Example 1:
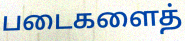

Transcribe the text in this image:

படைகளைத்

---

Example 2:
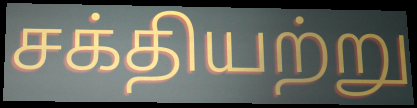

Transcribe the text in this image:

சக்தியற்று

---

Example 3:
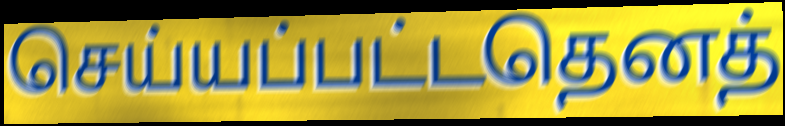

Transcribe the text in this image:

செய்யப்பட்டதெனத்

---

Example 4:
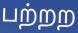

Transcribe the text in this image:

பற்றற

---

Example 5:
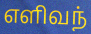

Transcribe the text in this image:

எளிவந்